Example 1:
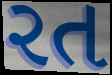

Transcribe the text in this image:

રત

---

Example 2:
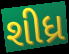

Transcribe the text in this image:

શીધ્ર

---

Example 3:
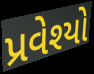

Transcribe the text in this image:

પ્રવેશ્યો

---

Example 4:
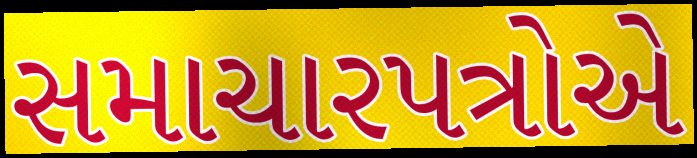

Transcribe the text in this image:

સમાચારપત્રોએ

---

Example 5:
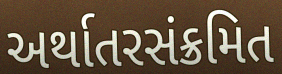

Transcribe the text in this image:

અર્થાતરસંક્રમિત